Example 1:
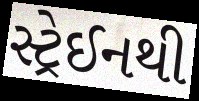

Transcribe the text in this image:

સ્ટ્રેઈનથી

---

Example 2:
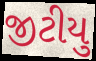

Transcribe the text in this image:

જીટીયુ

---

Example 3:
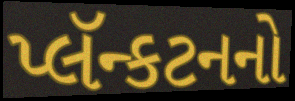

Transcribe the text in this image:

પ્લૅન્કટનનો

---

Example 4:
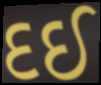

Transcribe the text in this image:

દઈ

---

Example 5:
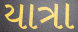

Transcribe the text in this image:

યાત્રા